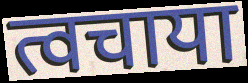
त्वचाया